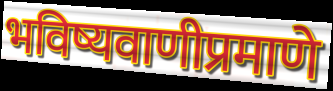
भविष्यवाणीप्रमाणे